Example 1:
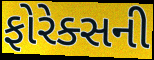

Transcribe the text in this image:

ફોરેક્સની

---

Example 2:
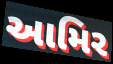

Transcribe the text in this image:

આમિર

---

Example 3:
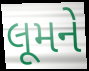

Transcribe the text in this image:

લૂમને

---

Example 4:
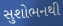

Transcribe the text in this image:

સુશોભનથી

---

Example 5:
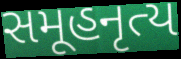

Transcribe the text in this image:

સમૂહનૃત્ય